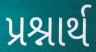
પ્રશ્નાર્થ